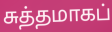
சுத்தமாகப்